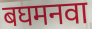
बघमनवा